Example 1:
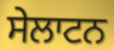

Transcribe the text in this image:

ਸੇਲਾਟਨ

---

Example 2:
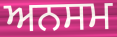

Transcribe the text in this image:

ਅਨਸਮ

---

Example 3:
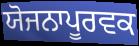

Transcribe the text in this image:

ਯੋਜਨਾਪੂਰਵਕ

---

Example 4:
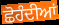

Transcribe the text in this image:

ਛੋਹੰਦੀਆਂ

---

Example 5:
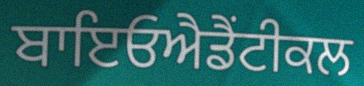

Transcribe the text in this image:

ਬਾਇਓਐਡੈਂਟੀਕਲ